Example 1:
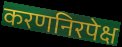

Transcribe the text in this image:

करणनिरपेक्ष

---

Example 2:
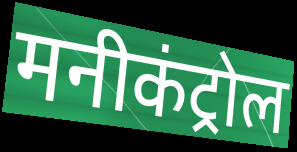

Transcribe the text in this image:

मनीकंट्रोल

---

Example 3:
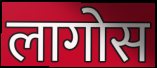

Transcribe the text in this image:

लागोस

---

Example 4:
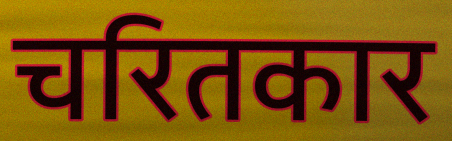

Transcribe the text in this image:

चरितकार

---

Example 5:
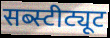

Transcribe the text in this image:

सब्स्टीट्यूट